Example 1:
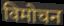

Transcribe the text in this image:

विमोचन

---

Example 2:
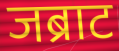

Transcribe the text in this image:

जब्राट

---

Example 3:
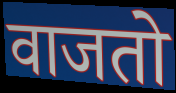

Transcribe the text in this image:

वाजतो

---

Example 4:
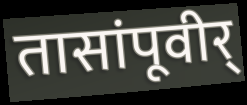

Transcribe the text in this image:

तासांपूवीर्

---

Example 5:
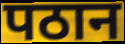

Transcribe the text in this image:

पठान